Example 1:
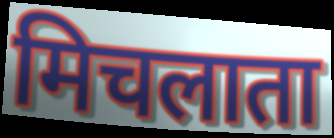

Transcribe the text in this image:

मिचलाता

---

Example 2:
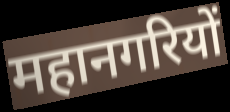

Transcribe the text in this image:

महानगरियों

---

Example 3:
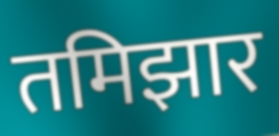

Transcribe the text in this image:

तमिझार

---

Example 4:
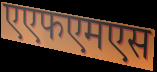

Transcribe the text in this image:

एएफएमएस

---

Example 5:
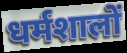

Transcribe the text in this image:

धर्मशालों